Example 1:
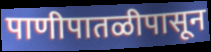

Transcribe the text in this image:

पाणीपातळीपासून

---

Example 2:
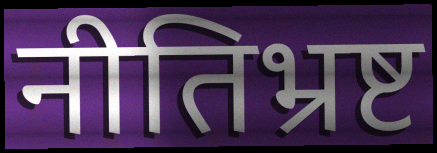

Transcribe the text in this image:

नीतिभ्रष्ट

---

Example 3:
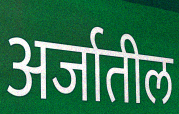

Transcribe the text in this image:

अर्जातील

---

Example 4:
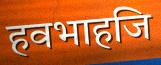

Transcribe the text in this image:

हवभाहजि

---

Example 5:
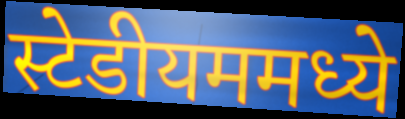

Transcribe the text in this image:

स्टेडीयममध्ये